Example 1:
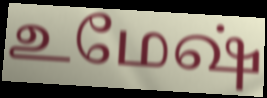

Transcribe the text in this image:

உமேஷ்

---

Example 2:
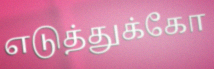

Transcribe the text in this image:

எடுத்துக்கோ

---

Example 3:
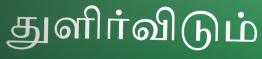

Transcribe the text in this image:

துளிர்விடும்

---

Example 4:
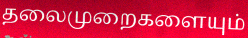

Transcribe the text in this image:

தலைமுறைகளையும்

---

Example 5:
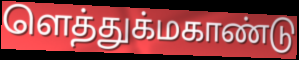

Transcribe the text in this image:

ளெத்துக்மகாண்டு